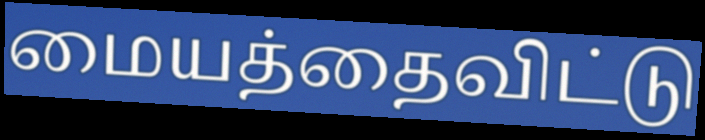
மையத்தைவிட்டு